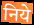
निये